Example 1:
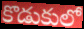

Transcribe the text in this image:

కొడుకులో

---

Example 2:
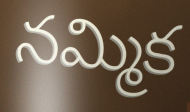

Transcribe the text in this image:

నమ్మిక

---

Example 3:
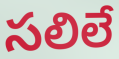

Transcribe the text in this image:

సలిలే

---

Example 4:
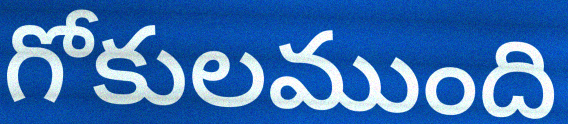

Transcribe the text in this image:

గోకులముంది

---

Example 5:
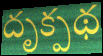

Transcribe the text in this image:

దృక్పథ